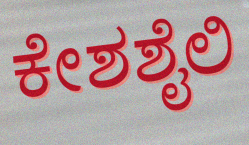
ಕೇಶಶೈಲಿ